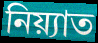
নিয়্যাত